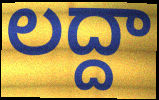
లద్దా